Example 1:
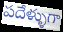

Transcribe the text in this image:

పదేళ్ళుగా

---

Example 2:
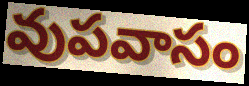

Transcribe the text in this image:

వుపవాసం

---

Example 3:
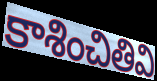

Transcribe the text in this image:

కాశించితివి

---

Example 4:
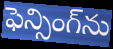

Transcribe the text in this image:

ఫెన్సింగ్‌ను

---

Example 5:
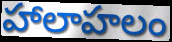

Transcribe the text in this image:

హాలాహలం